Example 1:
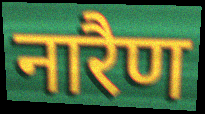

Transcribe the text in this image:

नारैण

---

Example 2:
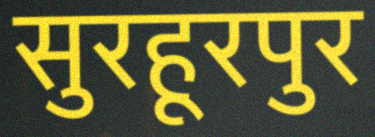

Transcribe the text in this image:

सुरहूरपुर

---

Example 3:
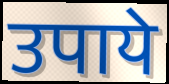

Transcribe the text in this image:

उपाये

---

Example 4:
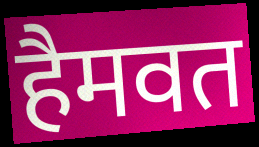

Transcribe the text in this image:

हैमवत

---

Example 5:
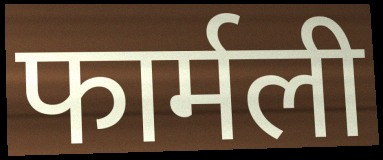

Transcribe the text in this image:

फार्मली